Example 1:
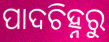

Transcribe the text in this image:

ପାଦଚିହ୍ନରୁ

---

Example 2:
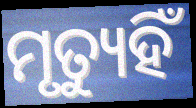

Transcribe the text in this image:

ମୃତ୍ୟୁହିଁ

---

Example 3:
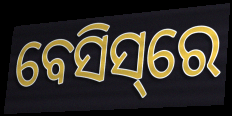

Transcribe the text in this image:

ବେସିସ୍‌ରେ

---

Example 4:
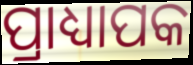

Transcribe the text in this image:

ପ୍ରାଧ୍ୟାପକ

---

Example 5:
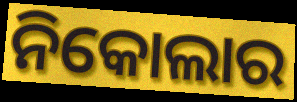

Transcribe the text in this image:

ନିକୋଲାର